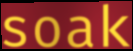
soak